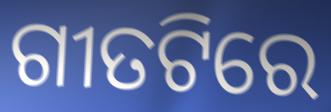
ଗୀତଟିରେ